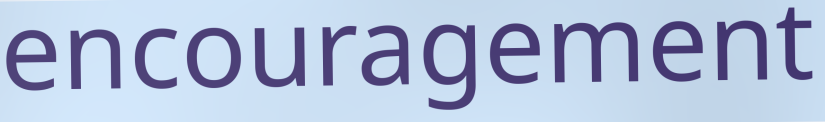
encouragement